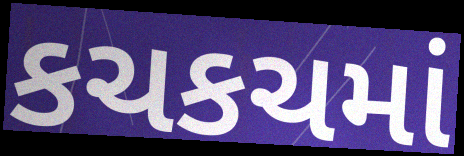
કચકચમાં